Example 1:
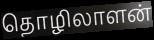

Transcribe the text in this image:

தொழிலாளன்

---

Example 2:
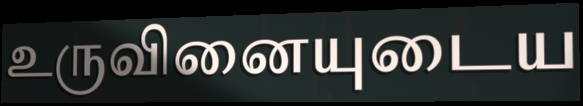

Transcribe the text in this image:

உருவினையுடைய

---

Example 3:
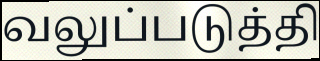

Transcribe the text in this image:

வலுப்படுத்தி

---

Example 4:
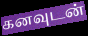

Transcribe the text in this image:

கனவுடன்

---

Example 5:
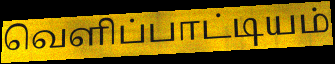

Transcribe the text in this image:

வெளிப்பாட்டியம்